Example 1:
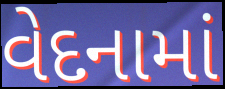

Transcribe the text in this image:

વેદનામાં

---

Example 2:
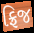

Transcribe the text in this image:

ફ્રિજ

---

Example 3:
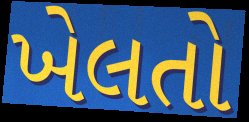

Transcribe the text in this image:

ખેલતો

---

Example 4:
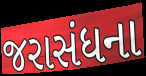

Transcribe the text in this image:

જરાસંધના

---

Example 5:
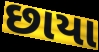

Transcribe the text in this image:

છાયા